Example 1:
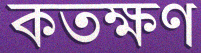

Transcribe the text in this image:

কতক্ষণ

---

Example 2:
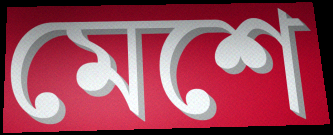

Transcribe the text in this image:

মেশে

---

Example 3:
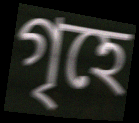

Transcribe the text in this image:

গৃহে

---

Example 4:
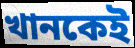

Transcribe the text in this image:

খানকেই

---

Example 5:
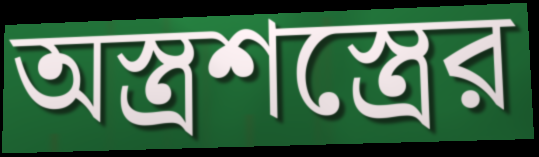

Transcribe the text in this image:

অস্ত্রশস্ত্রের